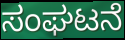
ಸಂಘಟನೆ